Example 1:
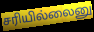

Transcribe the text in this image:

சரியில்லைனு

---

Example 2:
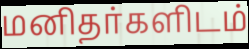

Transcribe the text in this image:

மனிதர்களிடம்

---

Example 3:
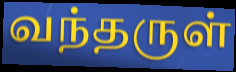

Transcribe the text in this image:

வந்தருள்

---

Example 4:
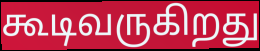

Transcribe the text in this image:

கூடிவருகிறது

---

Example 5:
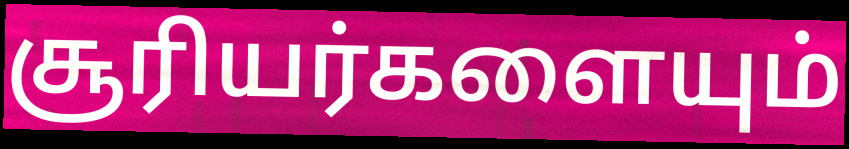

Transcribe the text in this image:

சூரியர்களையும்